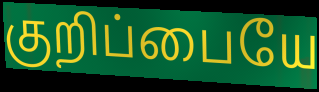
குறிப்பையே